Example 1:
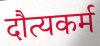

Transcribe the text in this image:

दौत्यकर्म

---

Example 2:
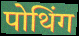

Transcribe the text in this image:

पोथिंग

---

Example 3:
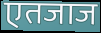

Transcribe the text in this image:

एतजाज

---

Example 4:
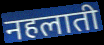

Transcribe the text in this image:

नहलाती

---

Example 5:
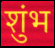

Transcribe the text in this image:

शुंभ